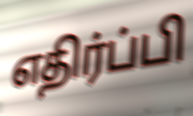
எதிர்ப்பி